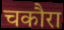
चकौरा